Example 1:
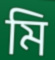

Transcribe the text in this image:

মি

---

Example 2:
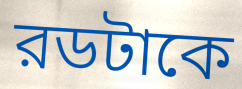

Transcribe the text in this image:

রডটাকে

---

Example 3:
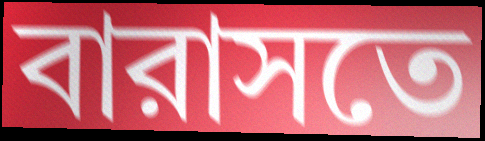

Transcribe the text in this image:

বারাসতে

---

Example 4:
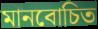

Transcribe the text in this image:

মানবোচিত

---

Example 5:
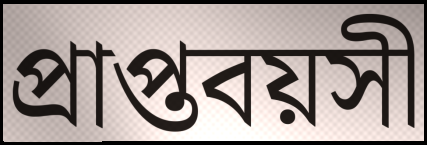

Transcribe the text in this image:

প্রাপ্তবয়সী